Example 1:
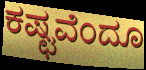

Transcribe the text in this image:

ಕಷ್ಟವೆಂದೂ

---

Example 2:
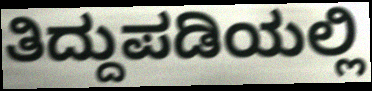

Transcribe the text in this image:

ತಿದ್ದುಪಡಿಯಲ್ಲಿ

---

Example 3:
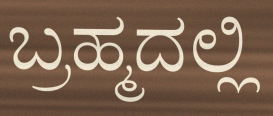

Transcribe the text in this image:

ಬ್ರಹ್ಮದಲ್ಲಿ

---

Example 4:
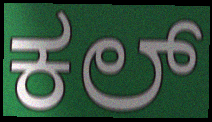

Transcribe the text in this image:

ಕಲ್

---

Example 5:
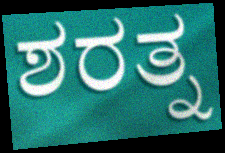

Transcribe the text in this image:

ಶರತ್ನ